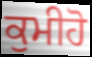
ਕੁਮੀਹੋ